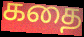
கதை